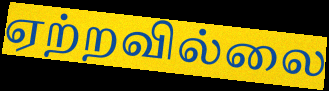
ஏற்றவில்லை